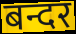
बन्दर